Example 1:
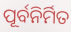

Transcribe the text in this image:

ପୂର୍ବନିର୍ମିତ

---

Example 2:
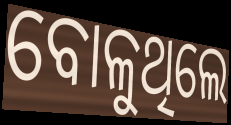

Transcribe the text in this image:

ବୋଳୁଥିଲେ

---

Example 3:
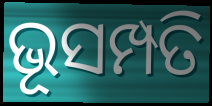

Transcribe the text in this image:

ଭୂସମ୍ପତି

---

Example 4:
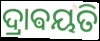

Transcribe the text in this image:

ଦ୍ରାଵୟତି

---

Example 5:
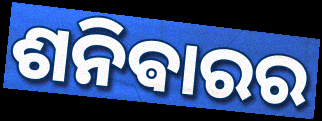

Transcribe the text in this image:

ଶନିଵାରର